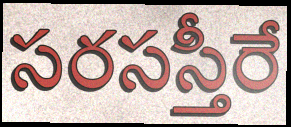
సరసస్తీరే